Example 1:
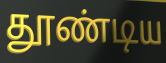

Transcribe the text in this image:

தூண்டிய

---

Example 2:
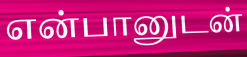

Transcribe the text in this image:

என்பானுடன்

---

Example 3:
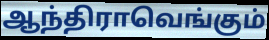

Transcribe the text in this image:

ஆந்திராவெங்கும்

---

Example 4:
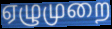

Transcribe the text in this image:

ஏழுமுறை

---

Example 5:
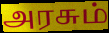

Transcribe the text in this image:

அரசும்